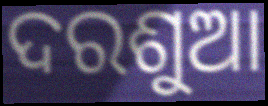
ଦରଶୁଆ